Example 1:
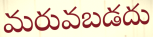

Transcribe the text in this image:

మరువబడదు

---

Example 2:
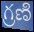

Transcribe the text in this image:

గ్రణి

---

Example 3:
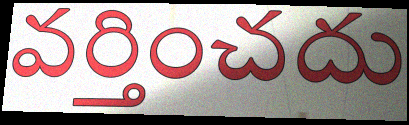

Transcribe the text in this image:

వర్తించదు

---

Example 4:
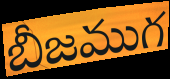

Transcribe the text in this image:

బీజముగ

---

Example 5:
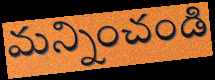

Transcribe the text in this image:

మన్నించండి